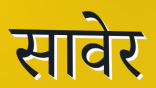
सावेर